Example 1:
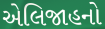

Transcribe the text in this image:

એલિજાહનો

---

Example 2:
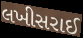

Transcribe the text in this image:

લખીસરાઈ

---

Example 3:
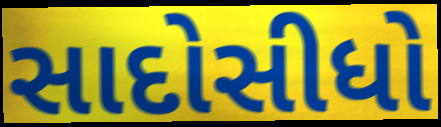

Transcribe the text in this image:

સાદોસીધો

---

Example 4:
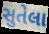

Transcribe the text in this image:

સુતેલા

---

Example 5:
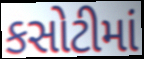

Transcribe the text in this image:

કસોટીમાં